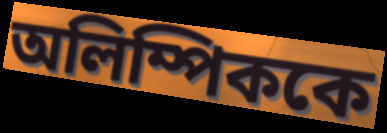
অলিম্পিককে